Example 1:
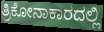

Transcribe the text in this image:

ತ್ರಿಕೋನಾಕಾರದಲ್ಲಿ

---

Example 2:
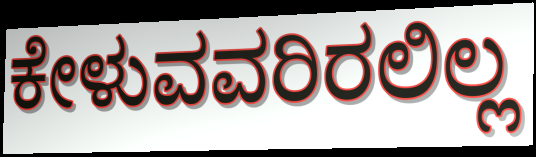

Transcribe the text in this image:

ಕೇಳುವವರಿರಲಿಲ್ಲ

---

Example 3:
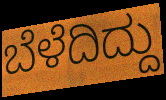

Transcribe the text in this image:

ಬೆಳೆದಿದ್ದು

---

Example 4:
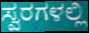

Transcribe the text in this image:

ಸ್ವರಗಳಲ್ಲಿ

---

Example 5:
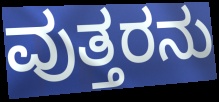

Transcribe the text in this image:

ವುತ್ತರನು